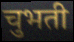
चुभती